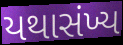
યથાસંખ્ય